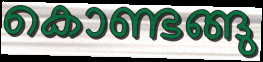
കൊണ്ടങ്ങു